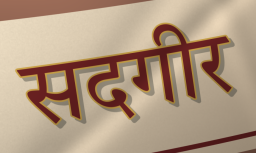
सदगीर